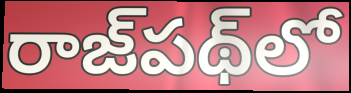
రాజ్‌పథ్‌లో